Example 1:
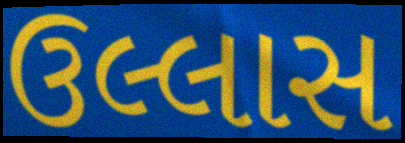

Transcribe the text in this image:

ઉલ્લાસ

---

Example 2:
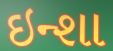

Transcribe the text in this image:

ઇન્શા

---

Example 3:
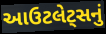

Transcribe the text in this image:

આઉટલેટ્સનું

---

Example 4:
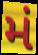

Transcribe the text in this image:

મં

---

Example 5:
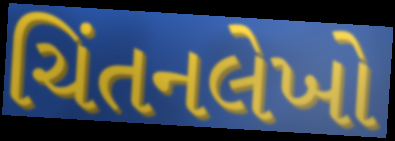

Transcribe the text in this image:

ચિંતનલેખો